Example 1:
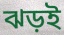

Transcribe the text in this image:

ঝড়ই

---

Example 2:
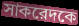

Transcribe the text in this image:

সাকরেদকে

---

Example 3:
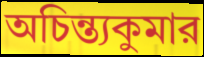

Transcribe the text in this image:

অচিন্ত্যকুমার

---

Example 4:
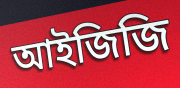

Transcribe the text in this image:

আইজিজি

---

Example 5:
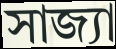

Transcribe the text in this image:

সাজ্যা